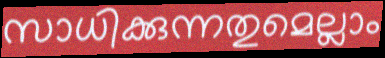
സാധിക്കുന്നതുമെല്ലാം